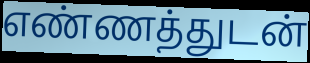
எண்ணத்துடன்